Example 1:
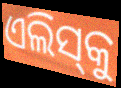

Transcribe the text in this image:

ଏଲିସ୍‌କୁ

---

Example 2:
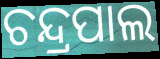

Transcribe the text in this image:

ଚନ୍ଦ୍ରପାଲ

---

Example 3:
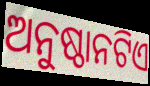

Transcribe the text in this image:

ଅନୁଷ୍ଠାନଟିଏ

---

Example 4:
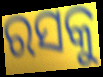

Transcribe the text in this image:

ରସକୁ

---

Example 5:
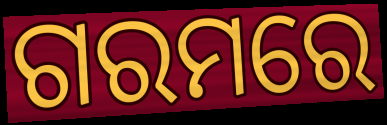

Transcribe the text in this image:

ଗରମରେ